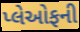
પ્લેઓફની